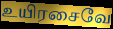
உயிரசைவே